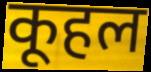
कूहल